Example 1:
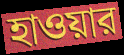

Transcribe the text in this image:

হাওয়ার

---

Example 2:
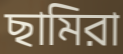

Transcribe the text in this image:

ছামিরা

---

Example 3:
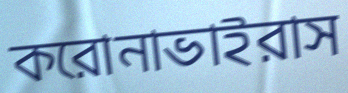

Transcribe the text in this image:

করোনাভাইরাস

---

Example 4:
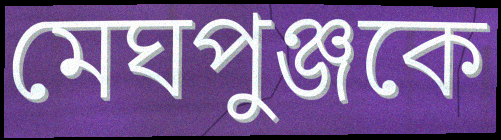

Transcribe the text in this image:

মেঘপুঞ্জকে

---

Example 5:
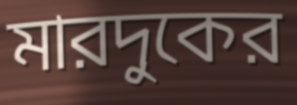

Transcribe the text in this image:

মারদুকের